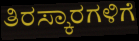
ತಿರಸ್ಕಾರಗಳಿಗೆ